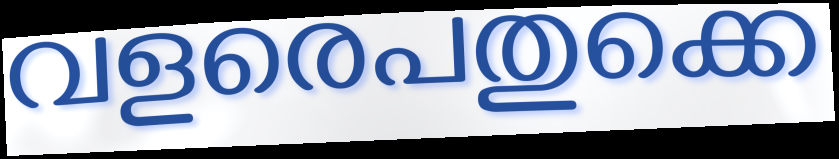
വളരെപതുക്കെ